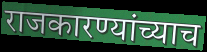
राजकारण्यांच्याच